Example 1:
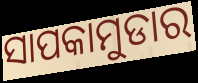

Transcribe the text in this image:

ସାପକାମୁଡାର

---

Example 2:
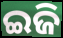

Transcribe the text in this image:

ଇଜି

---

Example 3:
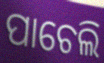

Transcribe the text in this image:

ପାଚେଲି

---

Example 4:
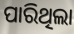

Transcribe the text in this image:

ପାରିଥିଲା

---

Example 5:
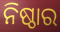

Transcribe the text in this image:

ନିଷ୍ଠାର